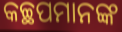
କଚ୍ଛପମାନଙ୍କ